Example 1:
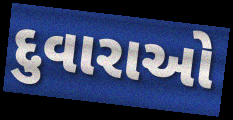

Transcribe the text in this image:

દુવારાઓ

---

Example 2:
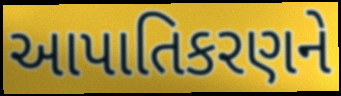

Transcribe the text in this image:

આપાતિકરણને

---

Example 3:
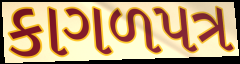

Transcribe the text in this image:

કાગળપત્ર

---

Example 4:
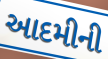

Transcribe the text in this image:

આદમીની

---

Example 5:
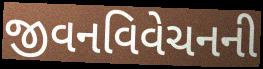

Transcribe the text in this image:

જીવનવિવેચનની